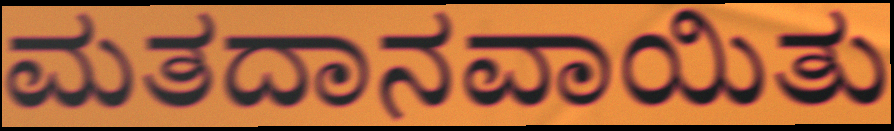
ಮತದಾನವಾಯಿತು